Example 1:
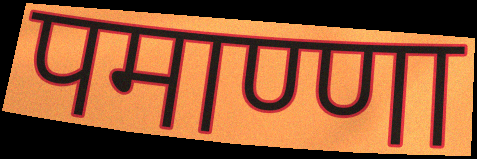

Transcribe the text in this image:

पमाण्णा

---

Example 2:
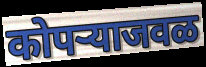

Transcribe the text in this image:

कोपऱ्याजवळ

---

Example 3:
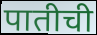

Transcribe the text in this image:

पातीची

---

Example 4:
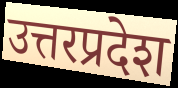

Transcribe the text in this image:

उत्तरप्रदेश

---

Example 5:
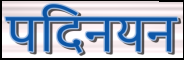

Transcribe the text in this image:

पदिनयन